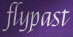
flypast